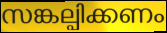
സങ്കല്പിക്കണം